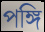
পঙ্গি